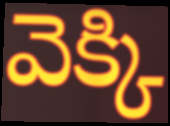
వెక్కి